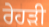
ਰੇਹੜੀ